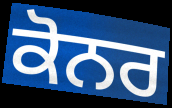
ਕੋਨਰ